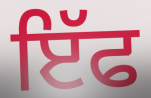
ਇੱਫ